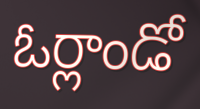
ఓర్లాండో